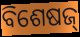
ବିଶେଷଜ୍